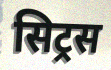
सिट्रस